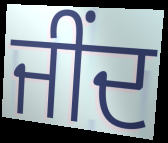
ਜੀਂਦ